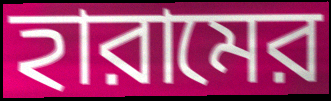
হারামের